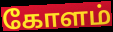
கோளம்